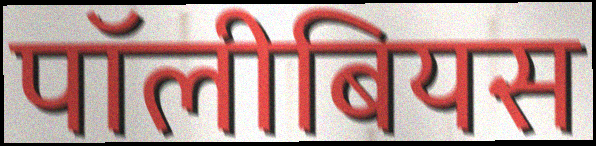
पॉलीबियस